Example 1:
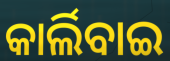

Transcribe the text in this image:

କାର୍ଲିବାଇ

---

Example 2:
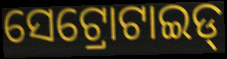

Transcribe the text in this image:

ସେଟ୍ରୋଟାଇଡ୍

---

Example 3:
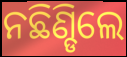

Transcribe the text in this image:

ନଛିଣ୍ଡିଲେ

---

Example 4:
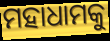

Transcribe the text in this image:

ମହାଧାମକୁ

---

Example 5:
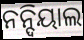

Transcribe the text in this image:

ନନ୍ଦିୟାଲ